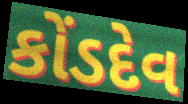
કોંડદેવ